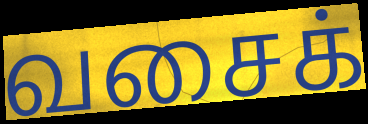
வசைக்